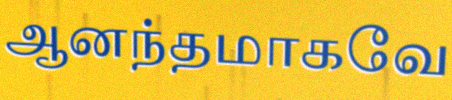
ஆனந்தமாகவே